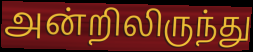
அன்றிலிருந்து